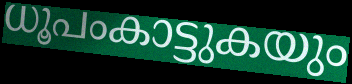
ധൂപംകാട്ടുകയും